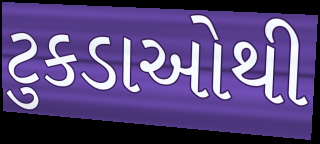
ટુકડાઓથી